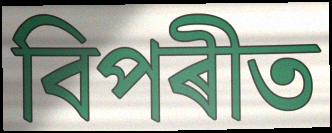
বিপৰীত